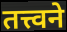
तत्त्वने